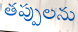
తప్పులను